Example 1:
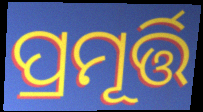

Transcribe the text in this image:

ପ୍ରମୂର୍ତ୍ତି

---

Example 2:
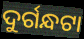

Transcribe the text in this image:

ଦୁର୍ଗନ୍ଧଟା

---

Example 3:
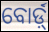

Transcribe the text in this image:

ବୋର୍ଡ଼୍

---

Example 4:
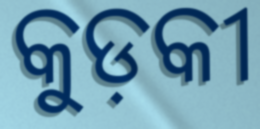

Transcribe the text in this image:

କୁଡ଼କୀ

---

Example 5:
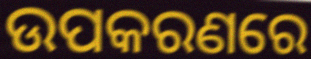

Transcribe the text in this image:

ଉପକରଣରେ